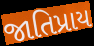
જાતિપ્રાય